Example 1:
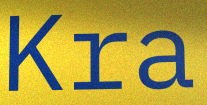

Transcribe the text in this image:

Kra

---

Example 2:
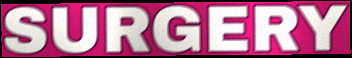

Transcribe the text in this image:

SURGERY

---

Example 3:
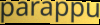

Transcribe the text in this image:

parappu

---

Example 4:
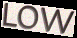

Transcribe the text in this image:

LOW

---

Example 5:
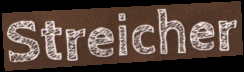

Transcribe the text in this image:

Streicher